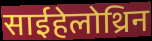
साईहेलोथ्रिन